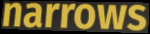
narrows